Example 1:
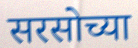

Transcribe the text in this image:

सरसोच्या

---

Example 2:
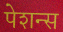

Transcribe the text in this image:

पेशन्स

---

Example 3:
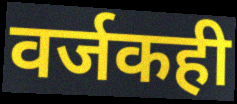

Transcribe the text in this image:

वर्जकही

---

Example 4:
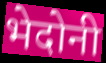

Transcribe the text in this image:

भेदोनी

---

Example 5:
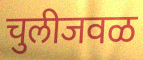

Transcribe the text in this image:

चुलीजवळ